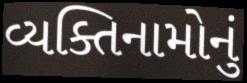
વ્યક્તિનામોનું